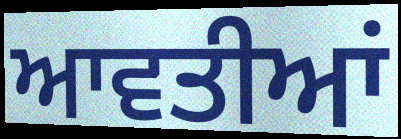
ਆਵਤੀਆਂ